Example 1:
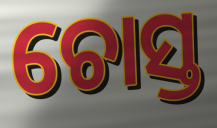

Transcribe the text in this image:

ଚୋସ୍ତ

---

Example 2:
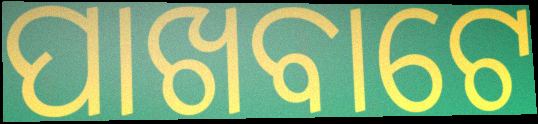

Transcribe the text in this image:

ପାଖବାଟେ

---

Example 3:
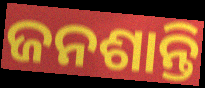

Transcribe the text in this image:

ଜନଶାନ୍ତି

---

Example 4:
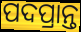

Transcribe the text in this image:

ପଦପ୍ରାନ୍ତ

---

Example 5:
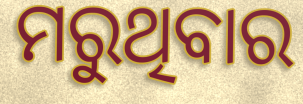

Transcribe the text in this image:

ମରୁଥିବାର